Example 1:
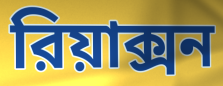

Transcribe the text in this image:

রিয়াক্সন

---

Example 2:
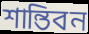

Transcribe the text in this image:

শান্তিবন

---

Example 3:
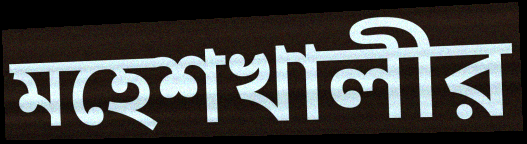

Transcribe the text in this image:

মহেশখালীর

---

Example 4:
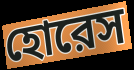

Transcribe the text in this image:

হোরেস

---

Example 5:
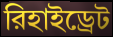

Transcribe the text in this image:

রিহাইড্রেট